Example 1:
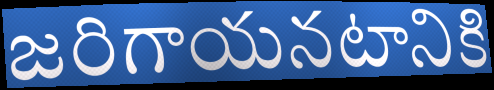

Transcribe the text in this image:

జరిగాయనటానికి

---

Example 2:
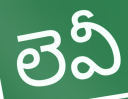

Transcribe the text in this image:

లెవీ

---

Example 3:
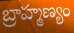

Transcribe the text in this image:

బ్రాహ్మణ్యం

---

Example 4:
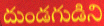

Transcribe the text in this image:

దుండగుడిని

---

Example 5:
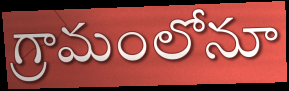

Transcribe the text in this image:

గ్రామంలోనూ